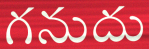
గనుదు